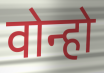
वोन्हो